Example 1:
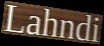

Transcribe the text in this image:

Lahndi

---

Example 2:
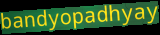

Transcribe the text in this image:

bandyopadhyay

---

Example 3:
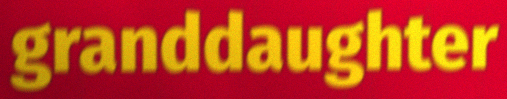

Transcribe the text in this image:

granddaughter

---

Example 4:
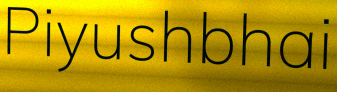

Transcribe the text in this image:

Piyushbhai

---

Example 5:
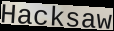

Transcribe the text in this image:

Hacksaw